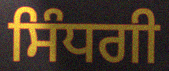
ਸਿੰਧਗੀ